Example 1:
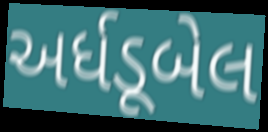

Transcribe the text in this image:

અર્ધડૂબેલ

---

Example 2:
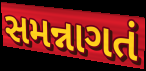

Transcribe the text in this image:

સમન્નાગતં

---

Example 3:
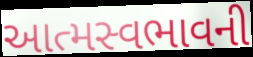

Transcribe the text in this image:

આત્મસ્વભાવની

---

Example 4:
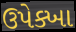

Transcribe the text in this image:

ઉપેક્ખા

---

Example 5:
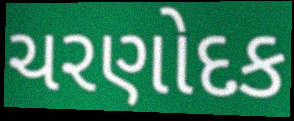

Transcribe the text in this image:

ચરણોદક